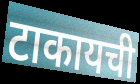
टाकायची